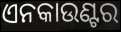
ଏନକାଉଣ୍ଟର